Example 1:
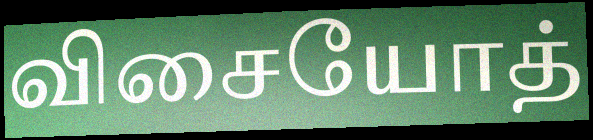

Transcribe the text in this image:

விசையோத்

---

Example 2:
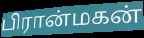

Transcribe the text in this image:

பிரான்மகன்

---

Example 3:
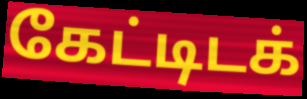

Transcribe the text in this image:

கேட்டிடக்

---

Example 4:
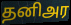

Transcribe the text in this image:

தனிஅர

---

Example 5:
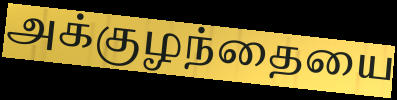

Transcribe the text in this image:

அக்குழந்தையை